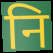
नि